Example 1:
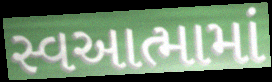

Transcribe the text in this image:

સ્વઆત્મામાં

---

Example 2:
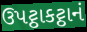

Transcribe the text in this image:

ઉપટ્ઠાકટ્ઠાનં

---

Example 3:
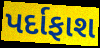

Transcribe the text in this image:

પર્દાફાશ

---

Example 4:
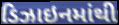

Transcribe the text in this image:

ડિઝાઇનમાંથી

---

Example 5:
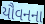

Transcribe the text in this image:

યૌવનના